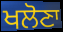
ਖਲੋਣਾ